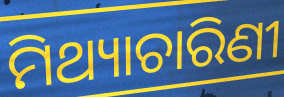
ମିଥ୍ୟାଚାରିଣୀ